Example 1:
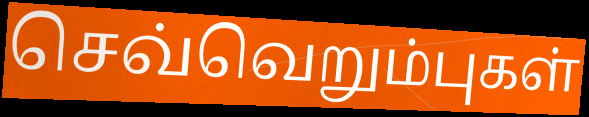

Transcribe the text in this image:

செவ்வெறும்புகள்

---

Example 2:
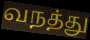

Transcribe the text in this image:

வநத்து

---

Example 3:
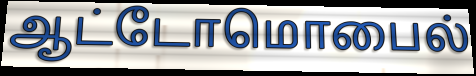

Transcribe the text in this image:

ஆட்டோமொபைல்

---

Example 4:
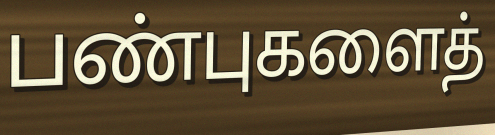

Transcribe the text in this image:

பண்புகளைத்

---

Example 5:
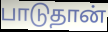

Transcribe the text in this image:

பாடுதான்